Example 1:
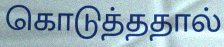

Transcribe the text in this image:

கொடுத்ததால்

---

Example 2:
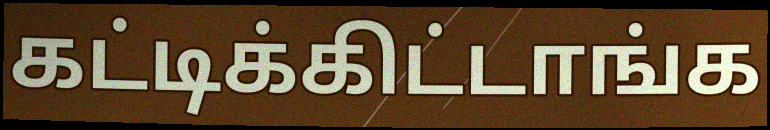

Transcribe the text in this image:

கட்டிக்கிட்டாங்க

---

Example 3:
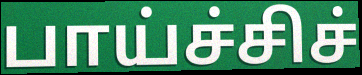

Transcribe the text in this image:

பாய்ச்சிச்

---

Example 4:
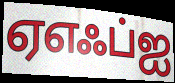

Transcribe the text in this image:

ஏஎஃப்ஐ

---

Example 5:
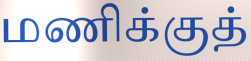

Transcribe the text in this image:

மணிக்குத்